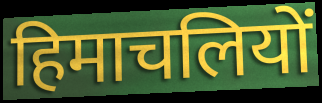
हिमाचलियों